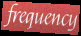
frequency